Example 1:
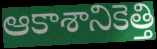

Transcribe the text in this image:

ఆకాశానికెత్తి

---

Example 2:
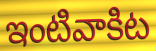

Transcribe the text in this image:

ఇంటివాకిట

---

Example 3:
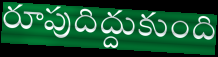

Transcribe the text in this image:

రూపుదిద్దుకుంది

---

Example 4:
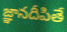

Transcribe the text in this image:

జ్ఞానదీపితే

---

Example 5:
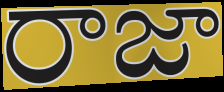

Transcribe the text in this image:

రాజా